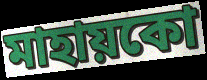
মাহায়কো